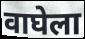
वाघेला